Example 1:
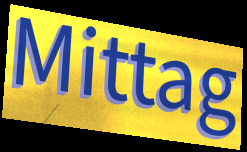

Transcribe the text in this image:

Mittag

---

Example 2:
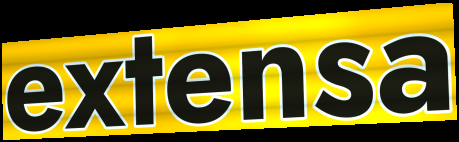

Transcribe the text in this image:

extensa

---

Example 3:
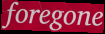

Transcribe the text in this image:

foregone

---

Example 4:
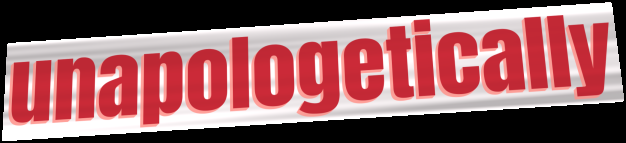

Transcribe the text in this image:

unapologetically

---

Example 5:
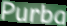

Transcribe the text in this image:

Purba